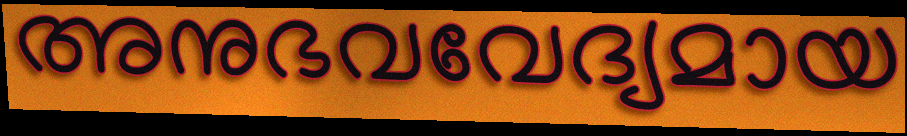
അനുഭവവേദ്യമായ